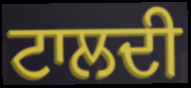
ਟਾਲਦੀ